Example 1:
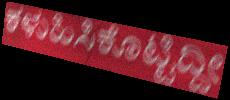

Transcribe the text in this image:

ಕಳುಹಿಸಿಕೊಟ್ಟಿದ್ದೀ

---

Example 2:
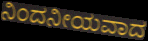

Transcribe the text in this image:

ನಿಂದನೀಯವಾದ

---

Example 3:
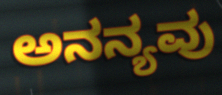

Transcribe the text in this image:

ಅನನ್ಯವು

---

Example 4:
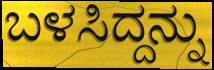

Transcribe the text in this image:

ಬಳಸಿದ್ದನ್ನು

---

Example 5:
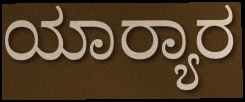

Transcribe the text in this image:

ಯಾರ‍್ಯಾರ